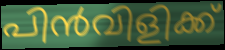
പിൻവിളിക്ക്